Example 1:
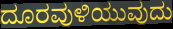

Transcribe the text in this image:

ದೂರವುಳಿಯುವುದು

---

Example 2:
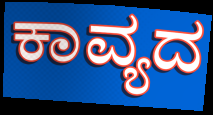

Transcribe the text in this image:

ಕಾವ್ಯದ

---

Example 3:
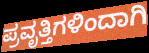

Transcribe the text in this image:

ಪ್ರವೃತ್ತಿಗಳಿಂದಾಗಿ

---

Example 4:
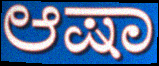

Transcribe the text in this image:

ಆಷಾ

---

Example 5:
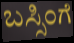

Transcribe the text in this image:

ಬಸ್ಸಿಂಗೆ